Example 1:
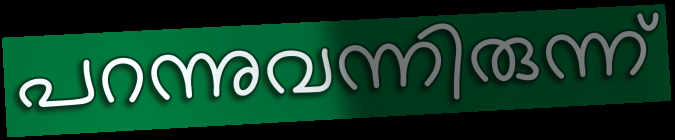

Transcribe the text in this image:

പറന്നുവന്നിരുന്ന്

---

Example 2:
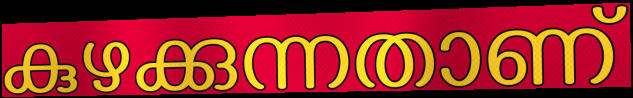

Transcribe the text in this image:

കുഴക്കുന്നതാണ്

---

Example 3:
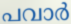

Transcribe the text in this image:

പവാർ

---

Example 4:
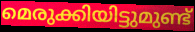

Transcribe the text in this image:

മെരുക്കിയിട്ടുമുണ്ട്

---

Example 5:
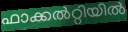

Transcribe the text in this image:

ഫാക്കൽറ്റിയിൽ